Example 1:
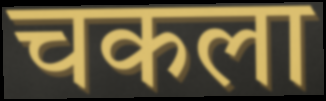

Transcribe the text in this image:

चकला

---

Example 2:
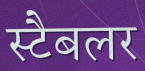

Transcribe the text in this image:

स्टैबलर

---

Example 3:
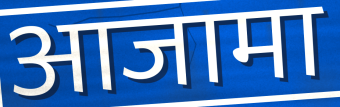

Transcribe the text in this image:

आजामा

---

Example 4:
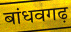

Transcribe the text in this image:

बांधवगढ़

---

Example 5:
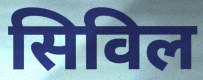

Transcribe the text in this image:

सिविल